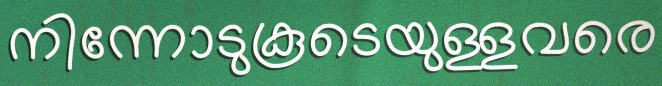
നിന്നോടുകൂടെയുള്ളവരെ